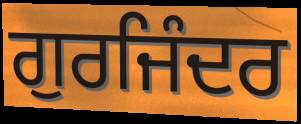
ਗੁਰਜਿੰਦਰ